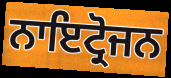
ਨਾਇਟ੍ਰੋਜਨ